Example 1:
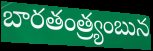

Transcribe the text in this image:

బారతంత్ర్యంబున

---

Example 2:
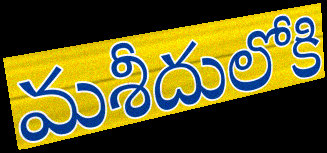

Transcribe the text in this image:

మశీదులోకి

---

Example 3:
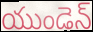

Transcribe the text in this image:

యుండెన్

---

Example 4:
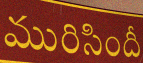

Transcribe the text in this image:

మురిసిందీ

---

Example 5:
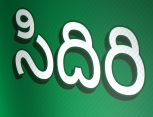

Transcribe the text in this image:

సిదిరి